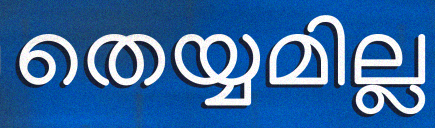
തെയ്യമില്ല